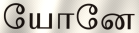
யோனே